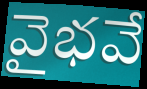
వైభవే